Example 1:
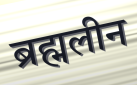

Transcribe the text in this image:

ब्रह्मलीन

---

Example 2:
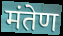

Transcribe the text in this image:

मंतेण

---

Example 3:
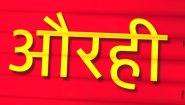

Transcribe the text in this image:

औरही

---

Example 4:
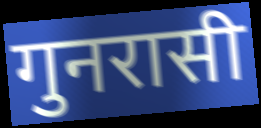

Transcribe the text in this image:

गुनरासी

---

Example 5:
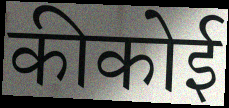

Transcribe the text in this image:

कीकोई